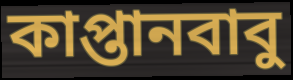
কাপ্তানবাবু